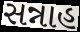
સન્નાહ